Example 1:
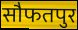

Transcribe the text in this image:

सौफतपुर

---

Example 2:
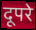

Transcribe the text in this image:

दूपरे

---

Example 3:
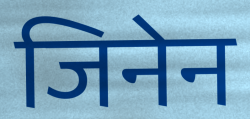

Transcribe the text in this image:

जिनेन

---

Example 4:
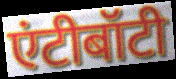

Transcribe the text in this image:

एंटीबॉटी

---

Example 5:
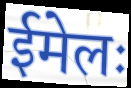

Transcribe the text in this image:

ईमेलः